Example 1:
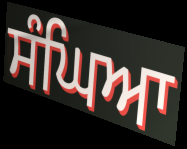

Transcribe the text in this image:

ਸੰਘਿਆ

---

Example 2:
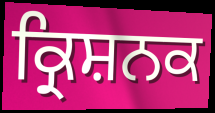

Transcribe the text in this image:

ਕ੍ਰਿਸ਼ਨਕ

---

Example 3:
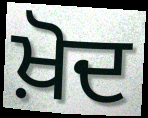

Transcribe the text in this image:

ਖ਼ੋਦ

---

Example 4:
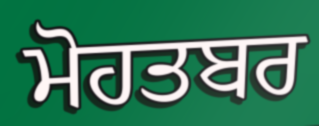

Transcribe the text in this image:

ਮੋਹਤਬਰ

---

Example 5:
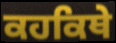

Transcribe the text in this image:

ਕਹਕਿਥੇ